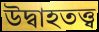
উদ্বাহতত্ত্ব